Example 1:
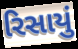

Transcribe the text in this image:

રિસાયું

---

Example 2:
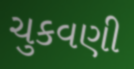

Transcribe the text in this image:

ચુકવણી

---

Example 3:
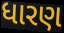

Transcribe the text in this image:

ધારણ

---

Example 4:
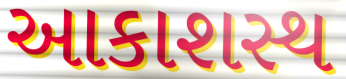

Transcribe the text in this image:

આકાશસ્થ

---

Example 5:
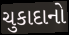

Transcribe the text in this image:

ચુકાદાનો